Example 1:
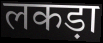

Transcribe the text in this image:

लकड़ा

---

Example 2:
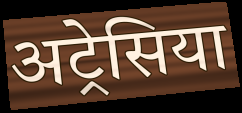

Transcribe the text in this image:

अट्रेसिया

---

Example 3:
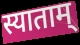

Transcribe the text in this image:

स्याताम्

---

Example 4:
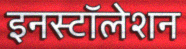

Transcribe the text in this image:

इनस्टॉलेशन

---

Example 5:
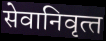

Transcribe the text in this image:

सेवानिवृत्‍त